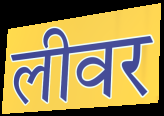
लीवर